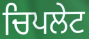
ਚਿਪਲੇਟ